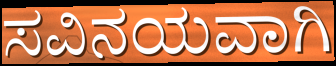
ಸವಿನಯವಾಗಿ